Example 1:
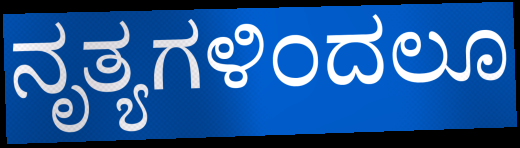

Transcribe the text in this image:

ನೃತ್ಯಗಳಿಂದಲೂ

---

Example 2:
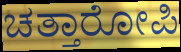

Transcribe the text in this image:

ಚತ್ತಾರೋಪಿ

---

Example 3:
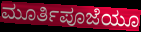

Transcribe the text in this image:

ಮೂರ್ತಿಪೂಜೆಯೂ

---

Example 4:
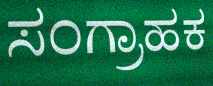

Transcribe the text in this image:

ಸಂಗ್ರಾಹಕ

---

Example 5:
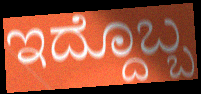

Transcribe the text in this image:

ಇದ್ದೊಬ್ಬ